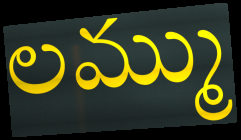
లమ్ము